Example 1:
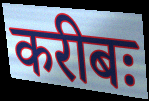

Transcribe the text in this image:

करीबः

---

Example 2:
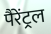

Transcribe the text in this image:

पैरेंट्रल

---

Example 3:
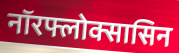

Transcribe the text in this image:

नॉरफ्लोक्सासिन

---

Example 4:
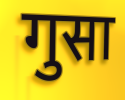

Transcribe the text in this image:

गुसा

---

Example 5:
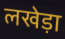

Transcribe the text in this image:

लखेड़ा